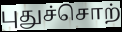
புதுச்சொற்